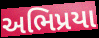
અભિપ્રયા